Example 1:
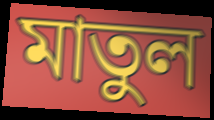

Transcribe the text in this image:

মাতুল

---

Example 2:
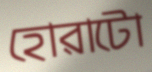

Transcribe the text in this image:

হোৱাটো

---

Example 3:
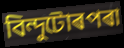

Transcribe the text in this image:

বিন্দুটোৰপৰা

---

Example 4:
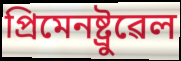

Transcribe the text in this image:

প্ৰিমেনষ্ট্ৰুৱেল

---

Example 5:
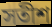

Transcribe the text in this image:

সতীশ